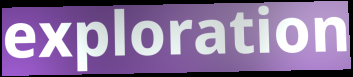
exploration